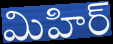
మిహిర్